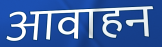
आवाहन